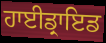
ਹਾਈਡ੍ਰਾਇਡ